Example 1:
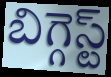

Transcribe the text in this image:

బిగ్గెస్ట్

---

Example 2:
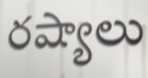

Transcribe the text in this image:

రష్యాలు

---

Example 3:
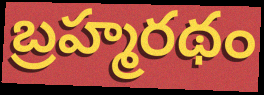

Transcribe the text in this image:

బ్రహ్మరథం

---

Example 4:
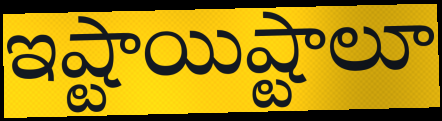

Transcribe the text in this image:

ఇష్టాయిష్టాలూ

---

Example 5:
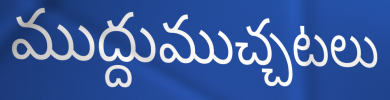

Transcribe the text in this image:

ముద్దుముచ్చటలు